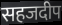
सहजदीप